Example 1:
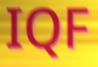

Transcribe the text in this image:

IQF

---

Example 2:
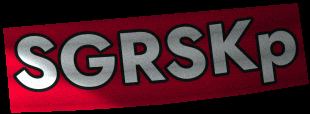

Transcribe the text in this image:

SGRSKp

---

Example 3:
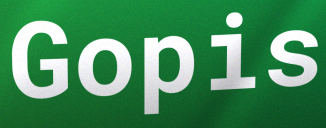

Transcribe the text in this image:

Gopis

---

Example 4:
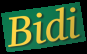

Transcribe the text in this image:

Bidi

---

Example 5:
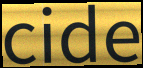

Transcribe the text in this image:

cide